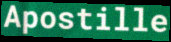
Apostille